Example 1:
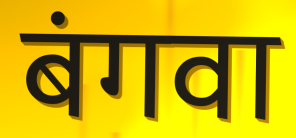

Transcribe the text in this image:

बंगवा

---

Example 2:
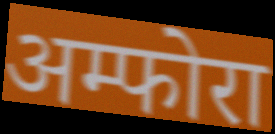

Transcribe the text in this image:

अम्फोरा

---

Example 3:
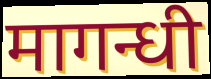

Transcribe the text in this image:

मागन्धी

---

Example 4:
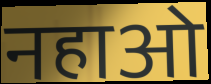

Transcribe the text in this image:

नहाओ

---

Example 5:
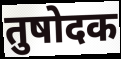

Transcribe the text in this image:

तुषोदक